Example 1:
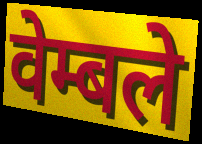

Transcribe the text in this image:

वेम्बले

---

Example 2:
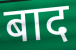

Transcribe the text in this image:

बाद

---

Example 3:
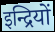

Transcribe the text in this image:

इन्द्रियों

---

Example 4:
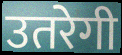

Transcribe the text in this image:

उतरेगी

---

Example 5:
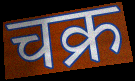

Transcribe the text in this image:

चक्र